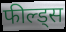
फील्ड्स